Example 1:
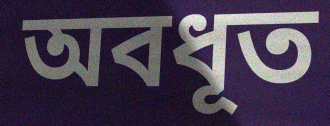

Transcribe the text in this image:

অবধূত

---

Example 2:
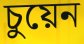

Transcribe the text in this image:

চুয়েন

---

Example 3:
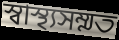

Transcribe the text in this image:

স্বাস্থ্যসম্মত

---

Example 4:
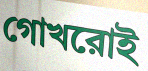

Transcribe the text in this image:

গোখরোই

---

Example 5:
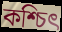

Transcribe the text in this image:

কশ্চিৎ